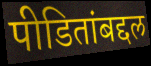
पीडितांबद्दल